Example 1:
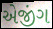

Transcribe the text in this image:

એજીંગ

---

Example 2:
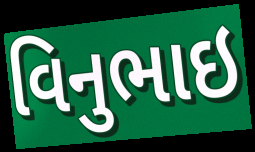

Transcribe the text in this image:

વિનુભાઇ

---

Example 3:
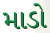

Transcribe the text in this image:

માડો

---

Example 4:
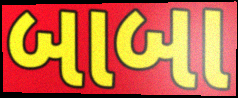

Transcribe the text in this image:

બાબા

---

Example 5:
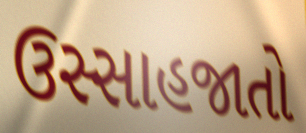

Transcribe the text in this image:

ઉસ્સાહજાતો